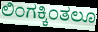
ಲಿಂಗಕ್ಕಿಂತಲೂ